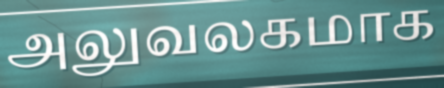
அலுவலகமாக